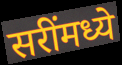
सरींमध्ये